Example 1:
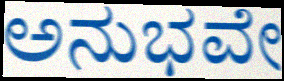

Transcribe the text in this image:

ಅನುಭವೇ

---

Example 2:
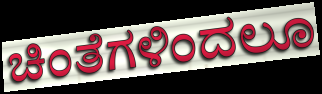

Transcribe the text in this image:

ಚಿಂತೆಗಳಿಂದಲೂ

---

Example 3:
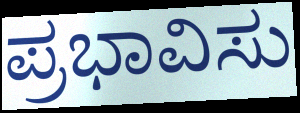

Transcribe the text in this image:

ಪ್ರಭಾವಿಸು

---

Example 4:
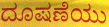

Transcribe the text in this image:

ದೂಷಣೆಯು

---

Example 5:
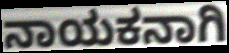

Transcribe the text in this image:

ನಾಯಕನಾಗಿ